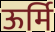
ऊर्मि